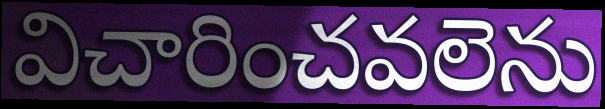
విచారించవలెను